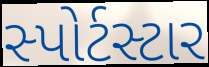
સ્પોર્ટસ્ટાર